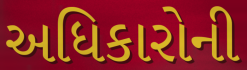
અધિકારોની